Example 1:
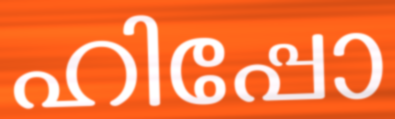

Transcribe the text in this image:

ഹിപ്പോ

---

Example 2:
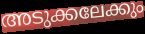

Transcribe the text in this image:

അടുക്കലേക്കും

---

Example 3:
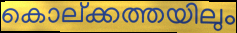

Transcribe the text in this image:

കൊല്ക്കത്തയിലും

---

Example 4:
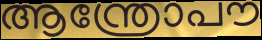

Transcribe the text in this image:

ആന്ത്രോപൗ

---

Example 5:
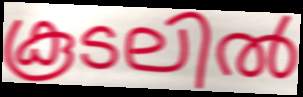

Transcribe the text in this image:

കൂടലിൽ